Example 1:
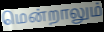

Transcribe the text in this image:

மென்றாலும்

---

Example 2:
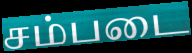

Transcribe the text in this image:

சம்படை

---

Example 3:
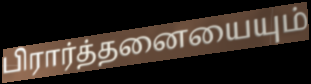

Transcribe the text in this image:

பிரார்த்தனையையும்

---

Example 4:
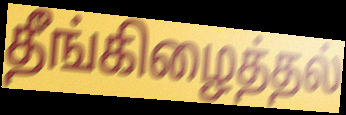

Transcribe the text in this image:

தீங்கிழைத்தல்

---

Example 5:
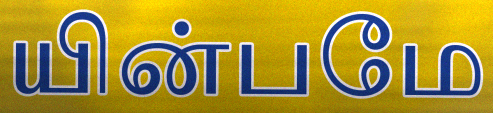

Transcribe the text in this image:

யின்பமே